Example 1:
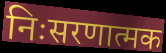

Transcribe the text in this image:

निःसरणात्मक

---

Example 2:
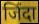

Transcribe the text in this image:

जिँदा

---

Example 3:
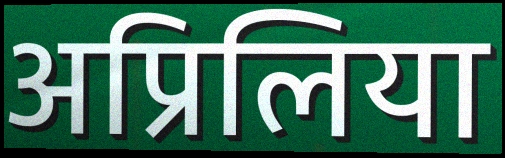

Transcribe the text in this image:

अप्रिलिया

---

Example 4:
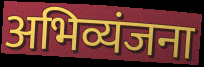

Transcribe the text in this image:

अभिव्यंजना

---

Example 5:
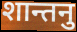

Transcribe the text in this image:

शान्तनु